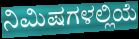
ನಿಮಿಷಗಳಲ್ಲಿಯೆ